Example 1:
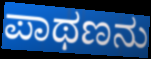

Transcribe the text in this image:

ಪಾಥಣನು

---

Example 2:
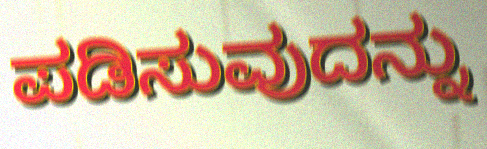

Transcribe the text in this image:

ಪಡಿಸುವುದನ್ನು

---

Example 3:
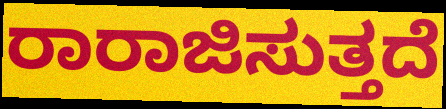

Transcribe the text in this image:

ರಾರಾಜಿಸುತ್ತದೆ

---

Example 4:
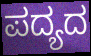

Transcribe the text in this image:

ಪದ್ಯದ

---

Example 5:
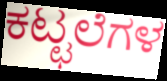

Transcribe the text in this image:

ಕಟ್ಟಲೆಗಳ